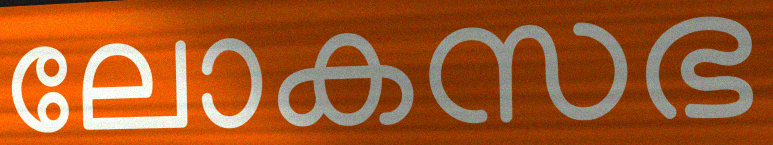
ലോകസഭ